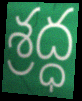
శ్రద్ధ